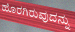
ಹೊರಗಿರುವುದನ್ನು